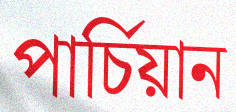
পাৰ্চিয়ান